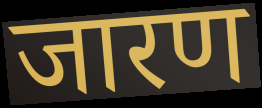
जारण